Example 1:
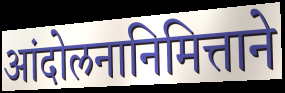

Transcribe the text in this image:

आंदोलनानिमित्ताने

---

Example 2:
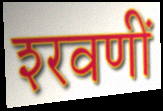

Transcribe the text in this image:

श्रवणीं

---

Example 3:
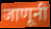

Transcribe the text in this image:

जाणूनी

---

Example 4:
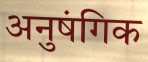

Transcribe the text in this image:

अनुषंगिक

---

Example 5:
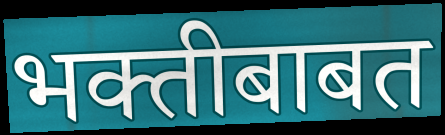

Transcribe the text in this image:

भक्तीबाबत